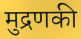
मुद्रणकी